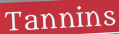
Tannins